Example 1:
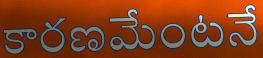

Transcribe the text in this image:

కారణమేంటనే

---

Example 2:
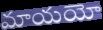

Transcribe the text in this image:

మాయయో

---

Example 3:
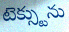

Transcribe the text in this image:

టెక్స్టును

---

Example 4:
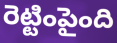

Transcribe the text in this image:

రెట్టింపైంది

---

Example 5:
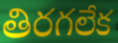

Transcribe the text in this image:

తిరగలేక